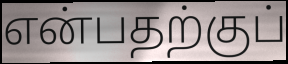
என்பதற்குப்